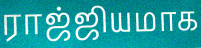
ராஜ்ஜியமாக